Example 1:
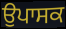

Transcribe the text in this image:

ਉਪਾਸਕ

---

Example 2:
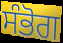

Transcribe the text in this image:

ਸੰਭੋਗ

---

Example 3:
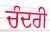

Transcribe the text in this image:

ਚੰਦਰੀ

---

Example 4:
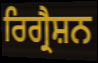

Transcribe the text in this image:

ਰਿਗ੍ਰੈਸ਼ਨ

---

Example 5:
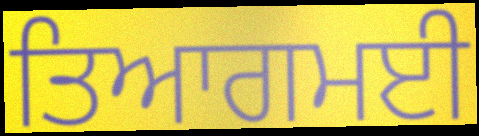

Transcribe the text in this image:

ਤਿਆਗਮਈ